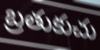
బ్రతుకుచు